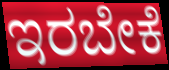
ಇರಬೇಕೆ